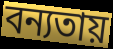
বন্যতায়